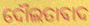
ଦୌଲତାବାଦ